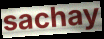
sachay